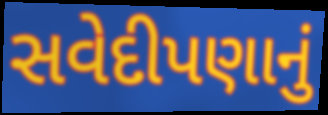
સવેદીપણાનું